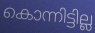
കൊന്നിട്ടില്ല